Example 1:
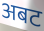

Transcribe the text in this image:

अबट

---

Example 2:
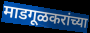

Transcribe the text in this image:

माडगूळकरांच्या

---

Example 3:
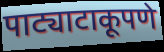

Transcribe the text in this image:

पाट्याटाकूपणे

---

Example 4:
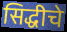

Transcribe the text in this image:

सिद्धीचे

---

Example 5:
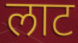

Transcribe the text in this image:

लाट